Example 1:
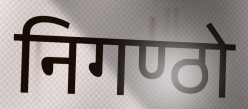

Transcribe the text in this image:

निगण्ठो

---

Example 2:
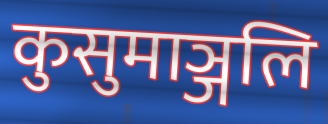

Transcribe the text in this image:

कुसुमाञ्जलि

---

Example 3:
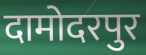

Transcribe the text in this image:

दामोदरपुर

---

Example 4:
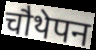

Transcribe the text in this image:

चौथेपन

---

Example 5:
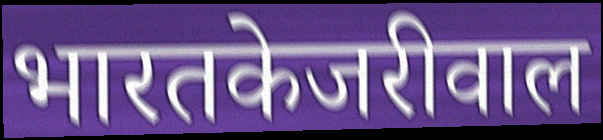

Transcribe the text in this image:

भारतकेजरीवाल